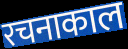
रचनाकाल